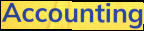
Accounting